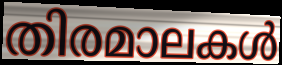
തിരമാലകൾ